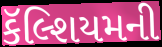
કૅલ્શિયમની